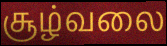
சூழ்வலை